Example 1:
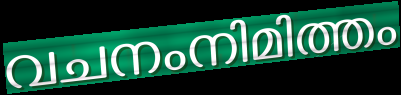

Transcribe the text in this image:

വചനംനിമിത്തം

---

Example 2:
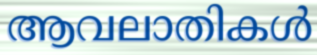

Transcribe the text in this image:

ആവലാതികൾ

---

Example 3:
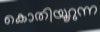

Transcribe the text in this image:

കൊതിയൂറുന്ന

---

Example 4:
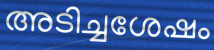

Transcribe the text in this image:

അടിച്ചശേഷം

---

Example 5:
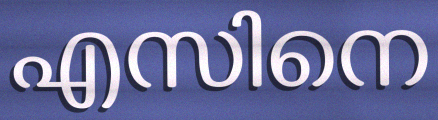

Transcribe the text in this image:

എസിനെ